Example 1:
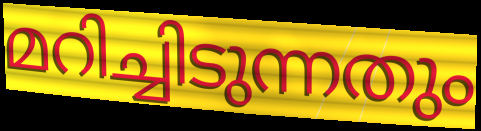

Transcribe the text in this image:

മറിച്ചിടുന്നതും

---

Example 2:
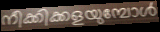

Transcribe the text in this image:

നീക്കിക്കളയുമ്പോൾ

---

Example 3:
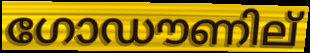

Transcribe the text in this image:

ഗോഡൗണില്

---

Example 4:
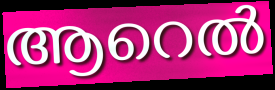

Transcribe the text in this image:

ആറെൽ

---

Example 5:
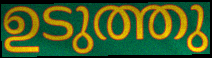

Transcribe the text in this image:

ഉടുത്തു